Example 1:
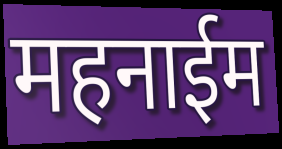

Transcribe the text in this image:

महनाईम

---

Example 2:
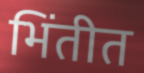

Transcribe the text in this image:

भिंतीत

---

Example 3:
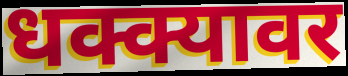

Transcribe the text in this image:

धक्क्यावर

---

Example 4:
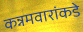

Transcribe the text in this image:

कन्नमवारांकडे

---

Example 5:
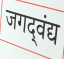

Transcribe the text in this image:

जगद्‌वंद्य